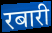
रबारी